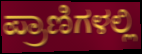
ಪ್ರಾಣಿಗಳಲ್ಲಿ